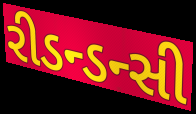
રીડન્ડન્સી